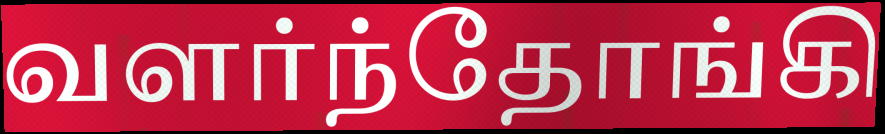
வளர்ந்தோங்கி